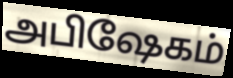
அபிஷேகம்